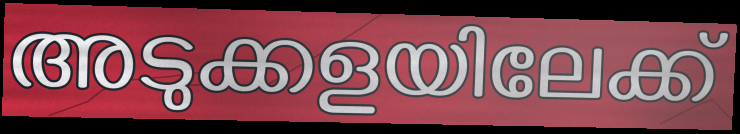
അടുക്കളയിലേക്ക്